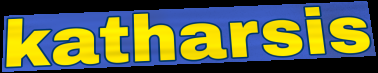
katharsis